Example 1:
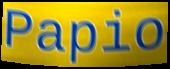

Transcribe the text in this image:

Papio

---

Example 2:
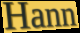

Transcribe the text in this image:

Hann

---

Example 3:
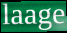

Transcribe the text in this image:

laage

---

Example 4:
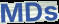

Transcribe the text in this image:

MDs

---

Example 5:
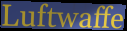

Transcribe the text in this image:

Luftwaffe